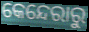
କେନ୍ଦେରାରୁ